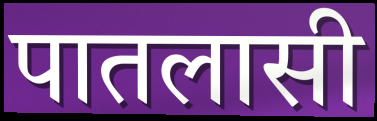
पातलासी